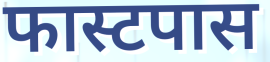
फास्टपास